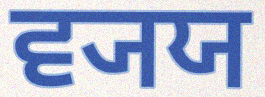
ਵ੍ਯਯ